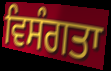
ਵਿਸੰਗਤਾ